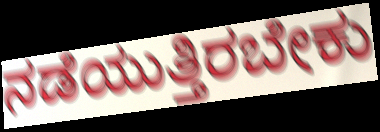
ನಡೆಯುತ್ತಿರಬೇಕು